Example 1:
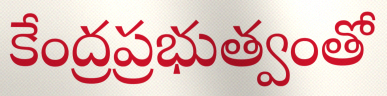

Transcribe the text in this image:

కేంద్రప్రభుత్వంతో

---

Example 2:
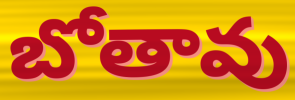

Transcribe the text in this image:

బోతావు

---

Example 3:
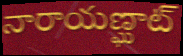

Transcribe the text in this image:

నారాయణ్ఘాట్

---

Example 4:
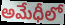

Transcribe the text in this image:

అమేధీలో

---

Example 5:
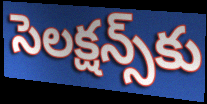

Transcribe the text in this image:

సెలక్షన్స్‌కు